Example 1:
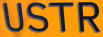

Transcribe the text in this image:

USTR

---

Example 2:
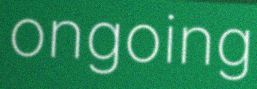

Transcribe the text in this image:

ongoing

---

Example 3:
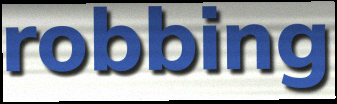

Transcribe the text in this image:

robbing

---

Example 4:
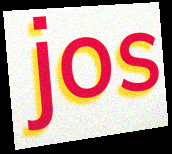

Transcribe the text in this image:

jos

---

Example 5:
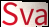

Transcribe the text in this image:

Sva